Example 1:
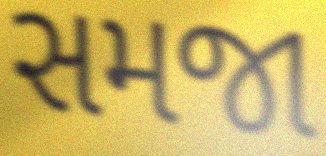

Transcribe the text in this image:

સમજા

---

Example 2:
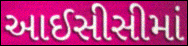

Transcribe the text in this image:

આઈસીસીમાં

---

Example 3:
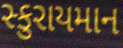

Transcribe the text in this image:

સ્કુરાયમાન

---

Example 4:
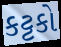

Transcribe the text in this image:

કટ્ટકો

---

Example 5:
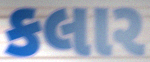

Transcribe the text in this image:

કલાર